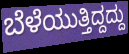
ಬೆಳೆಯುತ್ತಿದ್ದದ್ದು